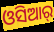
ଓସିଆର୍